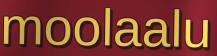
moolaalu